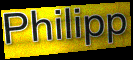
Philipp